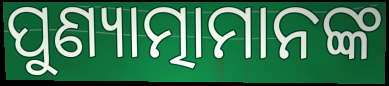
ପୁଣ୍ୟାତ୍ମାମାନଙ୍କ